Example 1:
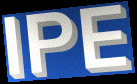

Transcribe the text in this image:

IPE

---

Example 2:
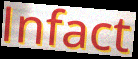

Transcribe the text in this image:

Infact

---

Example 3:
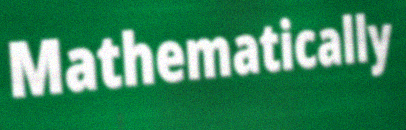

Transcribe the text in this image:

Mathematically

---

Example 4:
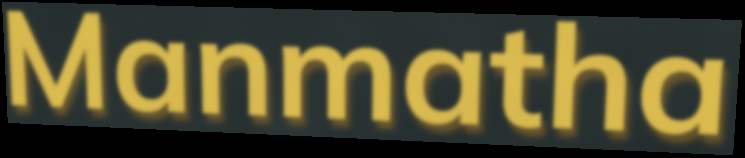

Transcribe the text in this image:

Manmatha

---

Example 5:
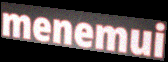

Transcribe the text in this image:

menemui